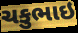
ચકુભાઇ